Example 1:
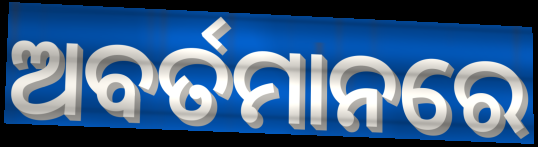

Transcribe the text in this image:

ଅବର୍ତମାନରେ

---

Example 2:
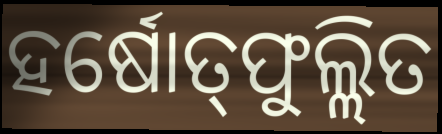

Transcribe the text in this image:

ହର୍ଷୋତ୍‌ଫୁଲ୍ଲିତ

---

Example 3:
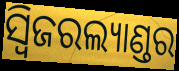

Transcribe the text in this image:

ସ୍ୱିଜରଲ୍ୟାଣ୍ଡର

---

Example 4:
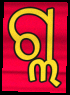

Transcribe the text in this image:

ଗ୍ଲ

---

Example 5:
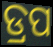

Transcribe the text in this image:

ଡ୍ରପ